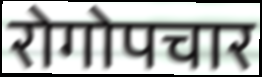
रोगोपचार